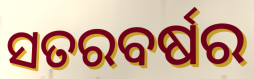
ସତରବର୍ଷର